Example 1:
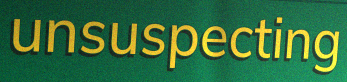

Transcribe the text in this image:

unsuspecting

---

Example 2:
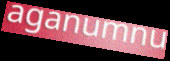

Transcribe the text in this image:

aganumnu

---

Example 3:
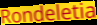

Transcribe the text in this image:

Rondeletia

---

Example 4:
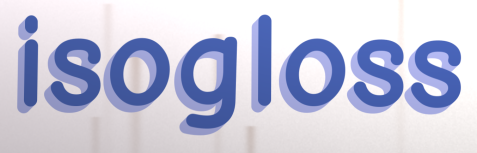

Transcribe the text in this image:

isogloss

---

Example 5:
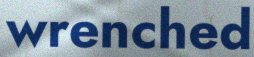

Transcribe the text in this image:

wrenched